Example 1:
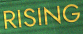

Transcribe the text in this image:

RISING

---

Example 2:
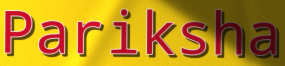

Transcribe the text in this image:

Pariksha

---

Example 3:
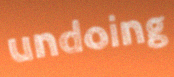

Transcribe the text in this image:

undoing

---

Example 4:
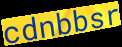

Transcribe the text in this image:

cdnbbsr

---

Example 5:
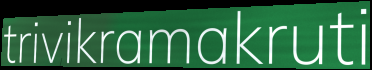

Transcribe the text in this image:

trivikramakruti